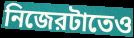
নিজেরটাতেও